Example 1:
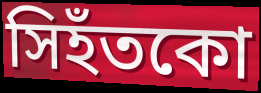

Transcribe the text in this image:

সিহঁতকো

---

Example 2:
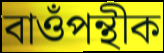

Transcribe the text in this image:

বাওঁপন্থীক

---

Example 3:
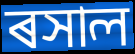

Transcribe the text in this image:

ৰসাল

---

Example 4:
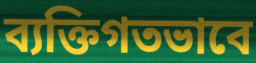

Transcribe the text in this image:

ব্যক্তিগতভাবে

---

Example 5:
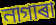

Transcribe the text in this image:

নাগাৰা